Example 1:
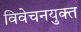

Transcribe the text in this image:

विवेचनयुक्त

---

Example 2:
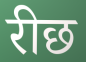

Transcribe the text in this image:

रीछ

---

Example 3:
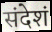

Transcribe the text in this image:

संदेशं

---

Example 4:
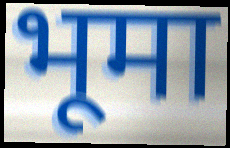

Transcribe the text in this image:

भूमा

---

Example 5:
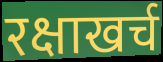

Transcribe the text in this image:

रक्षाखर्च